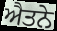
ਐਤਨੇ